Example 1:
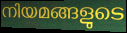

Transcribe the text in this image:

നിയമങ്ങളുടെ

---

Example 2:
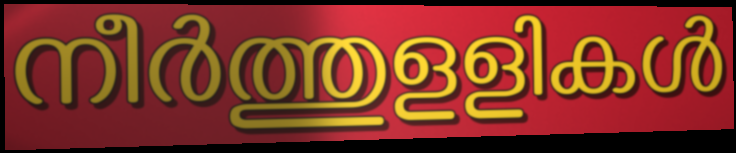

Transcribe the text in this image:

നീർത്തുളളികൾ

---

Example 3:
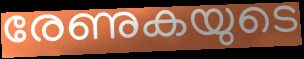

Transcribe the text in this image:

രേണുകയുടെ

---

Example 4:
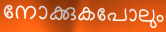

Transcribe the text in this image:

നോക്കുകപോലും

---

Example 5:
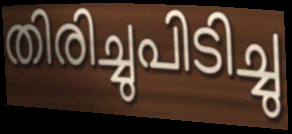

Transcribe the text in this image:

തിരിച്ചുപിടിച്ചു